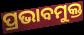
ପ୍ରଭାବମୁକ୍ତ